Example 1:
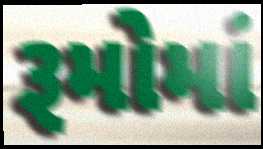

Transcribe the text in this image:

રૂમોમાં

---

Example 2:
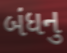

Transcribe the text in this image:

બંધનુ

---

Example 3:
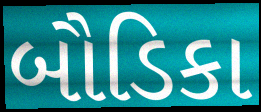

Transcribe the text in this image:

બૌડિકા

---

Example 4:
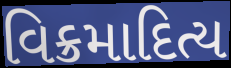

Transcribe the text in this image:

વિક્રમાદિત્ય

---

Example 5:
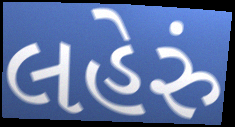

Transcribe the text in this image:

લહેરું